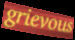
grievous